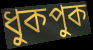
ধুকপুক